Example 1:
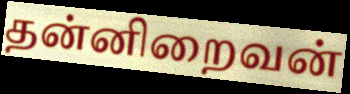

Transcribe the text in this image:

தன்னிறைவன்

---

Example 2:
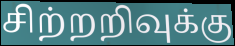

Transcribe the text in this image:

சிற்றறிவுக்கு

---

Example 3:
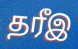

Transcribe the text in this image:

தரீஇ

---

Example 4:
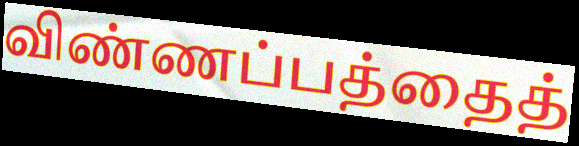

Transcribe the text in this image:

விண்ணப்பத்தைத்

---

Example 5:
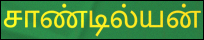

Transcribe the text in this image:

சாண்டில்யன்